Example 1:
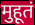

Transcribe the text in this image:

मुहूतं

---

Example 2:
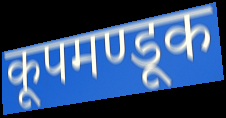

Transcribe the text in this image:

कूपमण्डूक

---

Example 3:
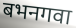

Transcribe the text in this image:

बभनगवा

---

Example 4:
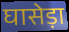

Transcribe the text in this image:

घासेड़ा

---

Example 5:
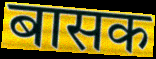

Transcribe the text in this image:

बासक